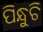
ପିନ୍ଧୁଚି